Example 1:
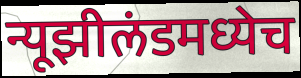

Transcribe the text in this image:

न्यूझीलंडमध्येच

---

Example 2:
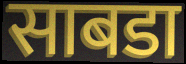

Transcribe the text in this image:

साबडा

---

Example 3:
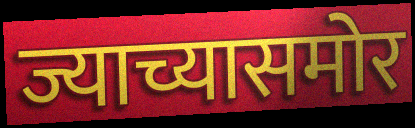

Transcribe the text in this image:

ज्याच्यासमोर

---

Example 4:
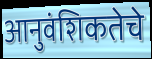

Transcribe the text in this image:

आनुवंशिकतेचे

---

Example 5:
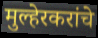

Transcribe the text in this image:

मुल्हेरकरांचे